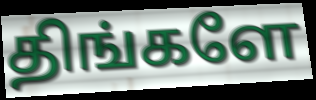
திங்களே